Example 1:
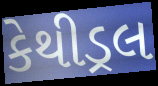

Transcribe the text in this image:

કેથીડ્રલ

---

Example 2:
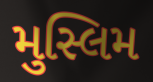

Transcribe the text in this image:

મુસ્લિમ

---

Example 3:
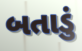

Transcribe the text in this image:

બતાડું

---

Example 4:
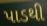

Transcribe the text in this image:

પાડથી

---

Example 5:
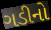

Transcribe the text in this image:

ગડીનો